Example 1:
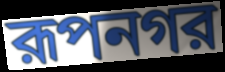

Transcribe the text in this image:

রূপনগর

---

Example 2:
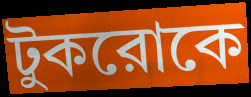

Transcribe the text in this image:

টুকরোকে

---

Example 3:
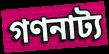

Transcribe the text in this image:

গণনাট্য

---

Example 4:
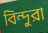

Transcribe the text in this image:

বিন্দুরা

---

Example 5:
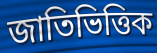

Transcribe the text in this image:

জাতিভিত্তিক